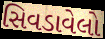
સિવડાવેલો